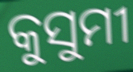
କୁସୁମୀ